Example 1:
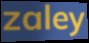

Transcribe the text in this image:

zaley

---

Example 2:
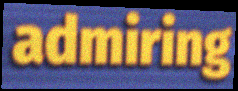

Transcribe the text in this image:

admiring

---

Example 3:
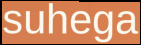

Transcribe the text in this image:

suhega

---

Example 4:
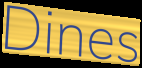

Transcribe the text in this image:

Dines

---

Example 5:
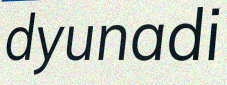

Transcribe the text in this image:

dyunadi